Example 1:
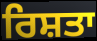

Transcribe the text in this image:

ਰਿਸ਼ਤਾ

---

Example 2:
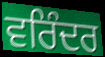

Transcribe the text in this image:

ਵਰਿੰਦਰ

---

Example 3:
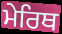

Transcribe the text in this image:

ਮੇਰਿਥ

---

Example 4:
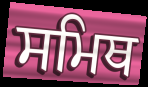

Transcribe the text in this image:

ਸਮਿਥ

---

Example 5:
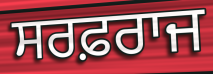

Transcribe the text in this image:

ਸਰਫ਼ਰਾਜ